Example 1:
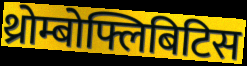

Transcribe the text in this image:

थ्रोम्बोफ्लिबिटिस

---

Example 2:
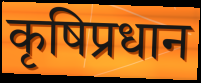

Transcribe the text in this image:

कृषिप्रधान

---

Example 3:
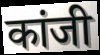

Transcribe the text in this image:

कांजी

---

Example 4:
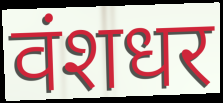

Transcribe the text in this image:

वंशधर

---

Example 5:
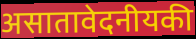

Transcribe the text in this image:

असातावेदनीयकी